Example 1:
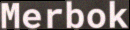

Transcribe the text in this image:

Merbok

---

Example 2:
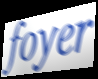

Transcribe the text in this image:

foyer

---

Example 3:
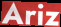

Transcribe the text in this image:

Ariz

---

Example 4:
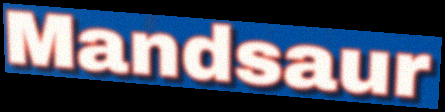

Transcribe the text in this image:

Mandsaur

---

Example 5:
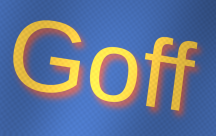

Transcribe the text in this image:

Goff